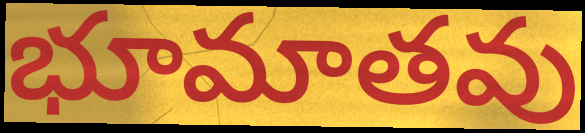
భూమాతవు